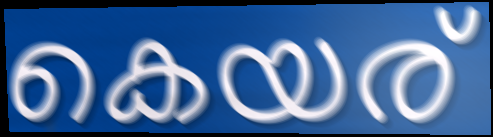
കെയര്